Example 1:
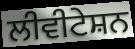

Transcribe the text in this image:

ਲੀਵੀਟੇਸ਼ਨ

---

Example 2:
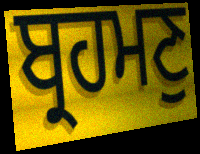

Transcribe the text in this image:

ਬ੍ਰਹਮਣੁ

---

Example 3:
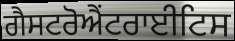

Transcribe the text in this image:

ਗੈਸਟਰੋਐਂਟਰਾਈਟਿਸ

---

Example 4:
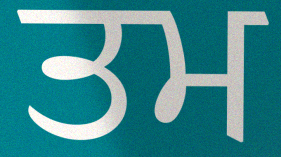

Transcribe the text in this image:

ਤਮ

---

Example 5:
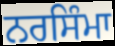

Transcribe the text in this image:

ਨਰਸਿੰਮਾ